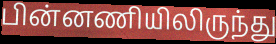
பின்னணியிலிருந்து